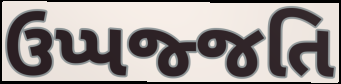
ઉપ્પજ્જતિ